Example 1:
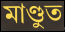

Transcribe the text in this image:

মাণ্ডুত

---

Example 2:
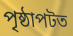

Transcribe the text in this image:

পৃষ্ঠাপটত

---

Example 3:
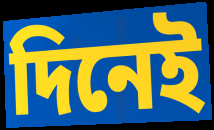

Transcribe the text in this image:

দিনেই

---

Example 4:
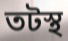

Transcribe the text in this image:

তটস্থ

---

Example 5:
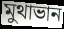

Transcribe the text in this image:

মুথাভান